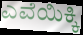
ಎವೆಯಿಕ್ಕಿ